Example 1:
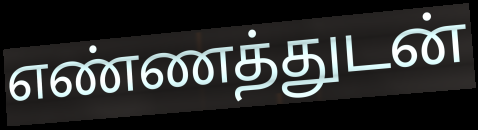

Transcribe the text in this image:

எண்ணத்துடன்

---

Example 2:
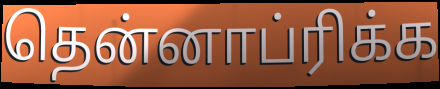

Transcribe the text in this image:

தென்னாப்ரிக்க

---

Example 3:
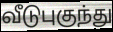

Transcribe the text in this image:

வீடுபுகுந்து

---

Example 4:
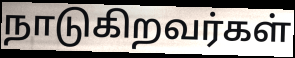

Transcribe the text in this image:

நாடுகிறவர்கள்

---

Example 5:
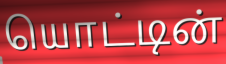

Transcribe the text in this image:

யொட்டின்